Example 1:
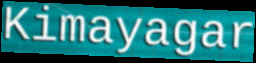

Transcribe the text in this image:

Kimayagar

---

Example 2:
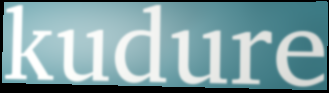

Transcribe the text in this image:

kudure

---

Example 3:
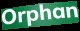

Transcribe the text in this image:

Orphan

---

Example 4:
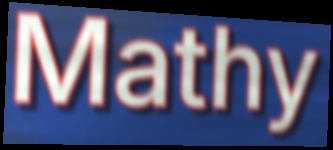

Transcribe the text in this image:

Mathy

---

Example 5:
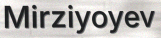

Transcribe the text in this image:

Mirziyoyev